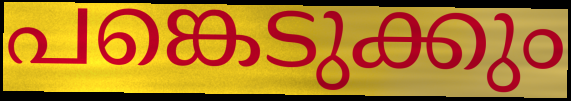
പങ്കെടുക്കും